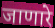
जाणारे